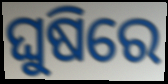
ଘୁଷିରେ